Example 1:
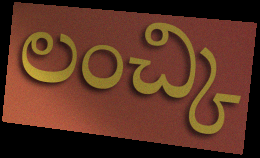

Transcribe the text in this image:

లంచ్కి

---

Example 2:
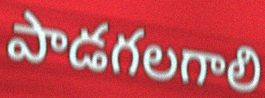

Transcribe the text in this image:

పాడగలగాలి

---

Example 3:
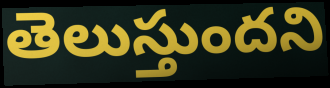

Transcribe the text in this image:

తెలుస్తుందని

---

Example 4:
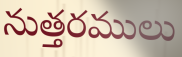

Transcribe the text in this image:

నుత్తరములు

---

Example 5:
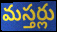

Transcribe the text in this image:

మస్తర్లు